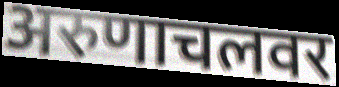
अरुणाचलवर